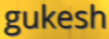
gukesh